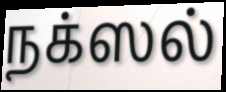
நக்ஸல்